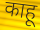
काहू